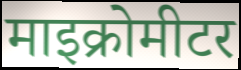
माइक्रोमीटर